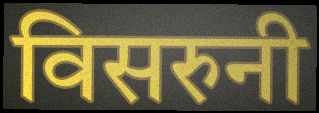
विसरुनी